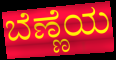
ಬೆಣ್ಣೆಯ